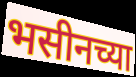
भसीनच्या